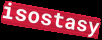
isostasy